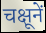
चक्षूनें